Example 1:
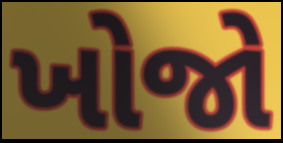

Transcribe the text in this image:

ખોજો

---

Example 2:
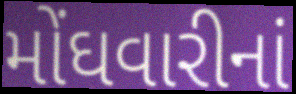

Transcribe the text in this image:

મોંઘવારીનાં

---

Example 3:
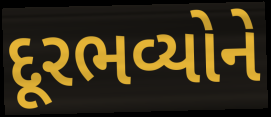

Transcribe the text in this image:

દૂરભવ્યોને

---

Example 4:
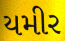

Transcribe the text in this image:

યમીર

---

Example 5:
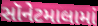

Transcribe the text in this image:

સૉનેટમાલામાં